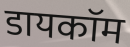
डायकॉम